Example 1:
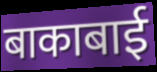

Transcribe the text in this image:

बाकाबाई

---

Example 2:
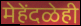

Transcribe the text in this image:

मेहेंदळेही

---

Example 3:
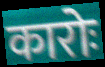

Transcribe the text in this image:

कारोः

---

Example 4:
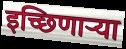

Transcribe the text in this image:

इच्छिणार्‍या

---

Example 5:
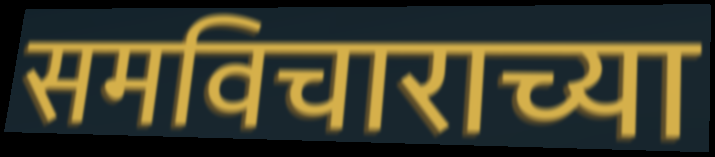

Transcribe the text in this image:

समविचाराच्या